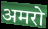
अमरो